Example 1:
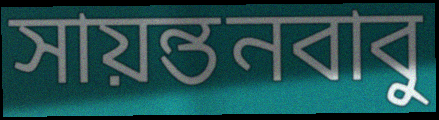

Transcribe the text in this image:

সায়ন্তনবাবু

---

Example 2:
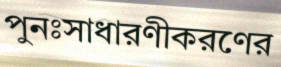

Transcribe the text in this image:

পুনঃসাধারণীকরণের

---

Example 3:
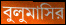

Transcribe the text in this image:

বুলুমাসির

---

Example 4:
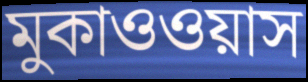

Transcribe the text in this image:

মুকাওওয়াস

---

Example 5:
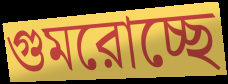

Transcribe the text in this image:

গুমরোচ্ছে